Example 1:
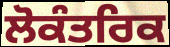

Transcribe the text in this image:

ਲੋਕੰਤਰਿਕ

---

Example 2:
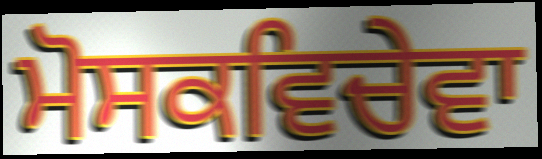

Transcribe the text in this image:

ਮੋਸਕਵਿਚੇਵਾ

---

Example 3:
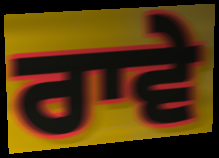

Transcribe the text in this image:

ਰਾਵੇ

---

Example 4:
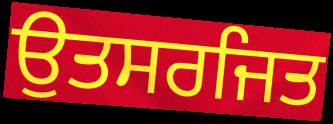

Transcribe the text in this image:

ਉਤਸਰਜਿਤ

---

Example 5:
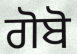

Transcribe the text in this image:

ਗੋਬੋ